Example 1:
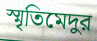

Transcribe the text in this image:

স্মৃতিমেদুর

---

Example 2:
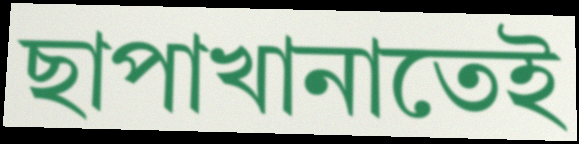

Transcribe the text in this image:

ছাপাখানাতেই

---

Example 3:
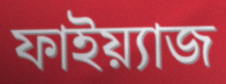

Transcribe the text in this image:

ফাইয়্যাজ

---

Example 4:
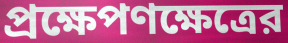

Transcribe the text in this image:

প্রক্ষেপণক্ষেত্রের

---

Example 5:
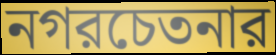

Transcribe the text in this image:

নগরচেতনার